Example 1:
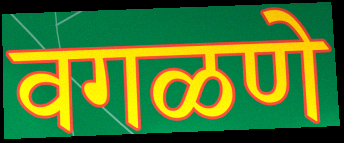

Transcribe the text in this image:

वगळणे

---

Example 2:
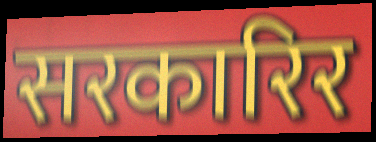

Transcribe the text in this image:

सरकारिर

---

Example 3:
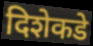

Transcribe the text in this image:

दिशेकडे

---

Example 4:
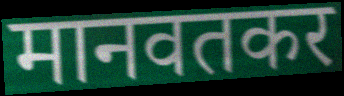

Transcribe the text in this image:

मानवतकर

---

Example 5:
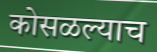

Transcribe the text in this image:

कोसळल्याच